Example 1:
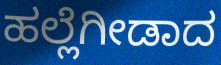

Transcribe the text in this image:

ಹಲ್ಲೆಗೀಡಾದ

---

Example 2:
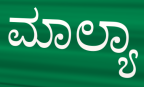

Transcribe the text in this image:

ಮಾಲ್ಯಾ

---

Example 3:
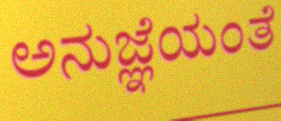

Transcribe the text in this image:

ಅನುಜ್ಞೆಯಂತೆ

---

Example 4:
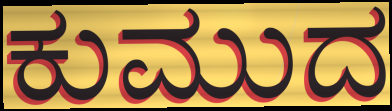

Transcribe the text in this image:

ಕುಮುದ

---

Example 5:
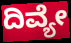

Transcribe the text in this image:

ದಿವ್ಯೇ